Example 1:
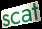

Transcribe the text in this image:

scat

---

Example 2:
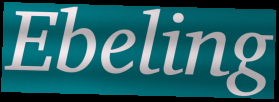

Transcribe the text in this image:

Ebeling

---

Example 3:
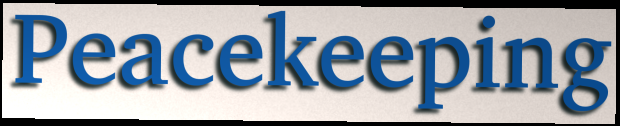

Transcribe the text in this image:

Peacekeeping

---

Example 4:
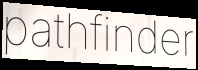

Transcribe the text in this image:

pathfinder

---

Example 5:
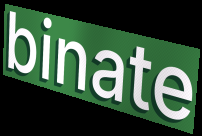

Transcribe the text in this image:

binate